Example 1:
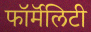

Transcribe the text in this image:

फॉर्मॅलिटी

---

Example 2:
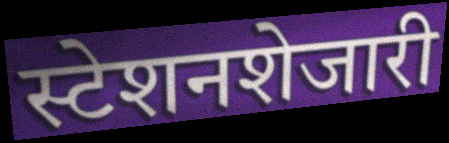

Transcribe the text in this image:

स्टेशनशेजारी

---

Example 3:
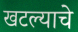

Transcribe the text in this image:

खटल्याचे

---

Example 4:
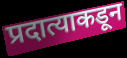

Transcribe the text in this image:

प्रदात्याकडून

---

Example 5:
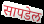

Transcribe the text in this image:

सापडेल